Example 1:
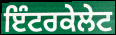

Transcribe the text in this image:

ਇੰਟਰਕੇਲੇਟ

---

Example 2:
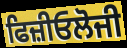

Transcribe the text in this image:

ਫਿਜ਼ੀਓਲੋਜੀ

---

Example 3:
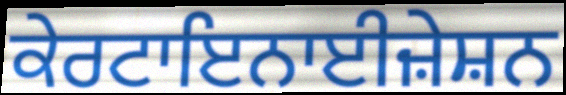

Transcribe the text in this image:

ਕੇਰਟਾਇਨਾਈਜ਼ੇਸ਼ਨ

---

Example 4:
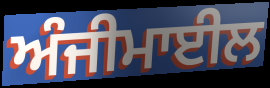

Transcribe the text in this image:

ਅੰਜੀਮਾਈਲ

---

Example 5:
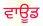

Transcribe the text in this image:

ਵਾਊਡ